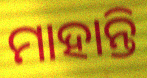
ମାହାନ୍ତି